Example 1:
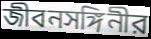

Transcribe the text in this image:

জীবনসঙ্গিনীর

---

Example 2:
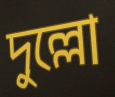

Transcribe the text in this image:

দুল্লো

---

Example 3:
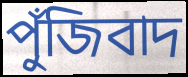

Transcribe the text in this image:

পুঁজিবাদ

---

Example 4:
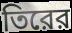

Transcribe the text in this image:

তিরের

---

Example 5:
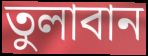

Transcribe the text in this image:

তুলাবান